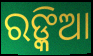
ରଙ୍କିଆ